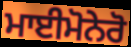
ਮਾਈਮੋਨੇਰੋ